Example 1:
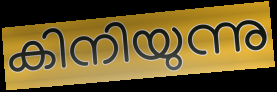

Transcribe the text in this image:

കിനിയുന്നു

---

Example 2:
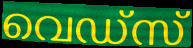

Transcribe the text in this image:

വെഡ്സ്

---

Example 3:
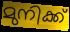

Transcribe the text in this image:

മുനിക്ക്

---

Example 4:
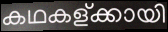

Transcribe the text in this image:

കഥകള്ക്കായി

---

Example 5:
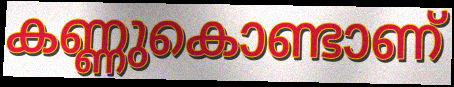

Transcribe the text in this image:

കണ്ണുകൊണ്ടാണ്